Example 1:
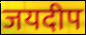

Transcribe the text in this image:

जयदीप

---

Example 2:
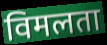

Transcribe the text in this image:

विमलता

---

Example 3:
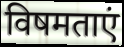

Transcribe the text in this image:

विषमताएं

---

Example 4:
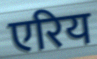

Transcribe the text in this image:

एरिय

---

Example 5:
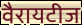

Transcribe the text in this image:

वैरायटीज